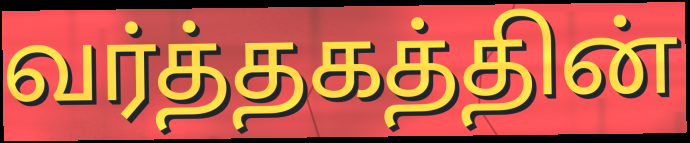
வர்த்தகத்தின்